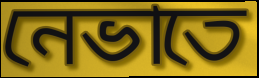
নেভাতে